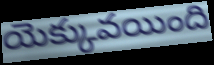
యెక్కువయింది